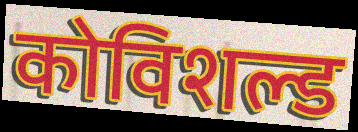
कोविशल्ड